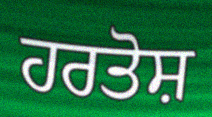
ਹਰਤੋਸ਼